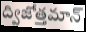
ద్విజోత్తమాన్